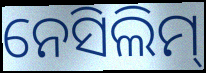
ନେସିଲିମ୍